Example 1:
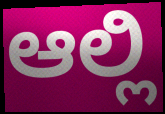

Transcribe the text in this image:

ಆಲ್ಲಿ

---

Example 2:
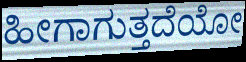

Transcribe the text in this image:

ಹೀಗಾಗುತ್ತದೆಯೋ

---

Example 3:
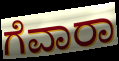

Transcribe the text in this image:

ಗೆವಾರಾ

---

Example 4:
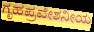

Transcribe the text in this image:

ಗೃಹಪ್ರವೇಶನೀಯ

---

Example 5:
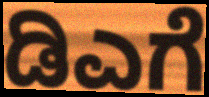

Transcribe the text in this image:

ಡಿಎಗೆ